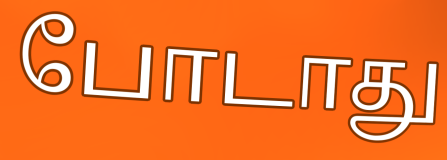
போடாது